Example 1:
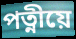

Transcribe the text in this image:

পত্নীয়ে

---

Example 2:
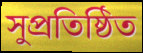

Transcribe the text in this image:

সুপ্ৰতিষ্ঠিত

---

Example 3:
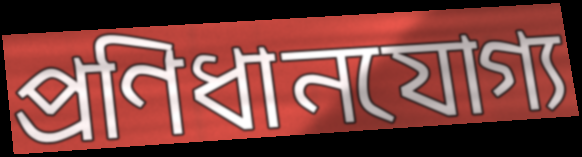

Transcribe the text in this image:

প্ৰণিধানযোগ্য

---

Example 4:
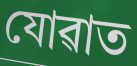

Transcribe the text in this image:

যোৱাত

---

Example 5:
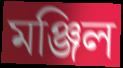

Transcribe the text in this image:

মঞ্জিল